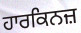
ਹਾਰਕਿਨਜ਼